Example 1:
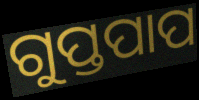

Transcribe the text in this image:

ଗୁପ୍ତପାପ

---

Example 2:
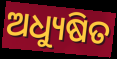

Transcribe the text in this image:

ଅଧ୍ୟୁଷିତ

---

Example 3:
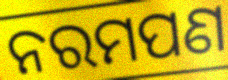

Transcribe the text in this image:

ନରମପଣ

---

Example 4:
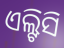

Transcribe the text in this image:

ଏଲ୍ଟିସି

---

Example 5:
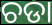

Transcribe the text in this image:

ଚଡା